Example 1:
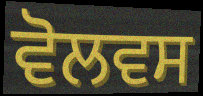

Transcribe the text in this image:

ਵੋਲਵਸ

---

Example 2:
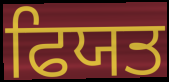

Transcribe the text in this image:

ਫਿਯਤ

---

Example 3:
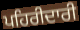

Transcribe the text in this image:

ਪਹਿਰੀਦਾਰੀ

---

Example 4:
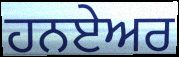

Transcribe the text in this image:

ਹਨਏਅਰ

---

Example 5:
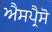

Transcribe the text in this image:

ਐਸਪ੍ਰੈਸੋ